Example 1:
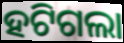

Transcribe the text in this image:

ହଟିଗଲା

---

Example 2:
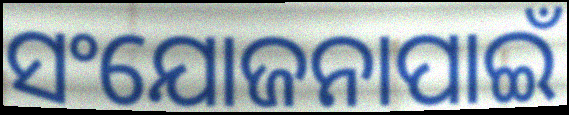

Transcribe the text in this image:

ସଂଯୋଜନାପାଇଁ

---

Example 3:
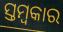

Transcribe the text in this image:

ସ୍ତମ୍ବକାର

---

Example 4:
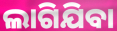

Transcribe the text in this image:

ଲାଗିଯିବା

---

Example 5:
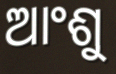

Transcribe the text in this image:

ଆଂଶୁ